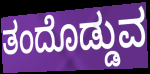
ತಂದೊಡ್ಡುವ